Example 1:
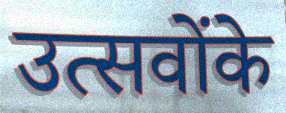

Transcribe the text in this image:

उत्सवोंके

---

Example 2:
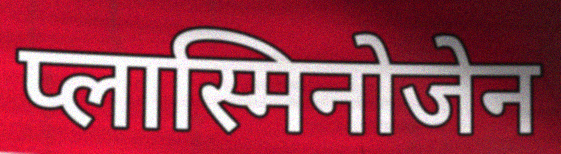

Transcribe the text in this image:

प्लास्मिनोजेन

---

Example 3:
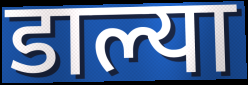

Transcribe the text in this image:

डाल्या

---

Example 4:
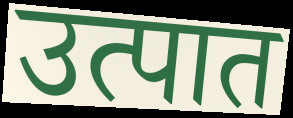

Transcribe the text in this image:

उत्पात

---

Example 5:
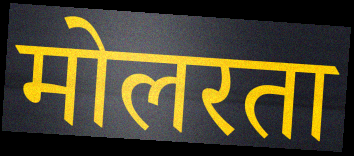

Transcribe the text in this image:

मोलरता